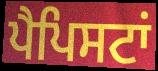
ਪੈਪਿਸਟਾਂ